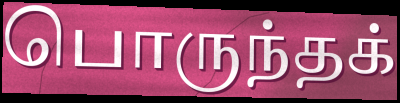
பொருந்தக்